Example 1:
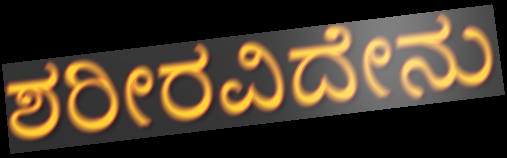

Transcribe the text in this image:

ಶರೀರವಿದೇನು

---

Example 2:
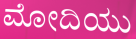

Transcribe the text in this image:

ಮೋದಿಯು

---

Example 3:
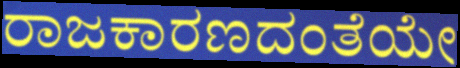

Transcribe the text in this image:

ರಾಜಕಾರಣದಂತೆಯೇ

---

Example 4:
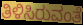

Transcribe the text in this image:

ತಿಳಿಸಿರುವಂತೆ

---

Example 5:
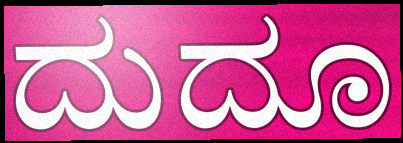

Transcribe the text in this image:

ದುದೂ